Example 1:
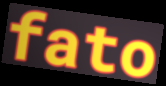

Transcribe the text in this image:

fato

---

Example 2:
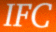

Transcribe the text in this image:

IFC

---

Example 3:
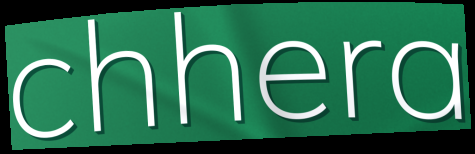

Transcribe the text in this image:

chhera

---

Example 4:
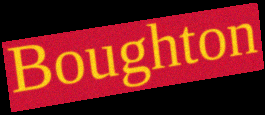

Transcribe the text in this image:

Boughton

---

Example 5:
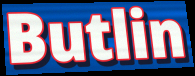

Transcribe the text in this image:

Butlin